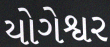
યોગેશ્વર